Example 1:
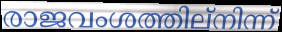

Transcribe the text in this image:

രാജവംശത്തില്നിന്ന്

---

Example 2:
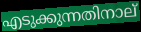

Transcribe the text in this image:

എടുക്കുന്നതിനാല്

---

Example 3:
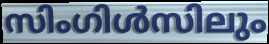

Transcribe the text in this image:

സിംഗിൾസിലും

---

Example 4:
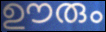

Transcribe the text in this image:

ഊരും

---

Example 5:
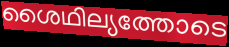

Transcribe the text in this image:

ശൈഥില്യത്തോടെ